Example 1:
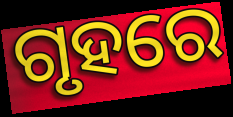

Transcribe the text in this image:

ଗୃହରେ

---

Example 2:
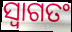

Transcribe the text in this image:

ସ୍ୱାଗତଂ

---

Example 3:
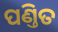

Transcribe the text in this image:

ପଣ୍ତିତ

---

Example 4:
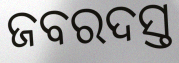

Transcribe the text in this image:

ଜବରଦସ୍ତ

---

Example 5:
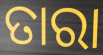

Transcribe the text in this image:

ତାରା